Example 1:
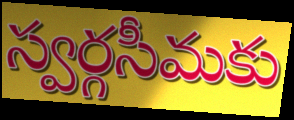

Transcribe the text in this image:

స్వర్గసీమకు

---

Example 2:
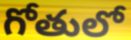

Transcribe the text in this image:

గోతులో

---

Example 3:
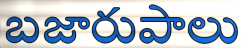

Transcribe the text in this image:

బజారుపాలు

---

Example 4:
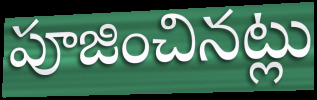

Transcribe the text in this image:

పూజించినట్లు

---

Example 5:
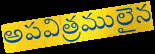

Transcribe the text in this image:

అపవిత్రములైన